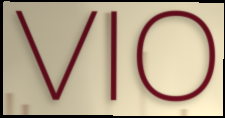
VIO